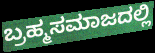
ಬ್ರಹ್ಮಸಮಾಜದಲ್ಲಿ